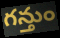
గన్తుం